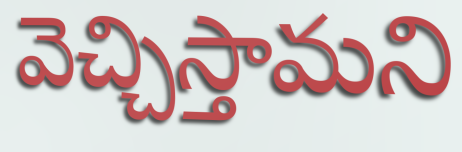
వెచ్చిస్తామని